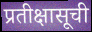
प्रतीक्षासूची